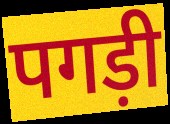
पगड़ी